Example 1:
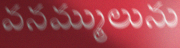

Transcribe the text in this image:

వనమ్ములును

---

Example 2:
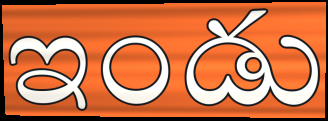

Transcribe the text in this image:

ఇండు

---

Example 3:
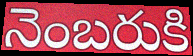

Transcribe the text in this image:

నెంబరుకి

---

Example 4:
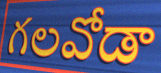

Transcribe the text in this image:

గలవోడా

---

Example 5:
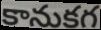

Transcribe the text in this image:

కానుకగ